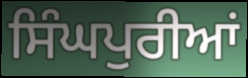
ਸਿੰਘਪੁਰੀਆਂ